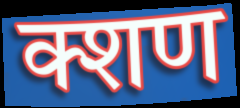
क्शण